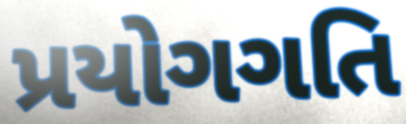
પ્રયોગગતિ